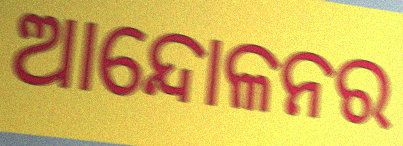
ଆନ୍ଦୋଳନର